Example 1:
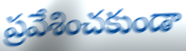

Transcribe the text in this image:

ప్రవేశించకుండా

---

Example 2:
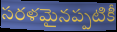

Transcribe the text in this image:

సరళమైనప్పటికీ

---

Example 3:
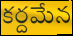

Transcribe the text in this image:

కర్దమేన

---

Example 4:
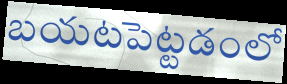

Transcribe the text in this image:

బయటపెట్టడంలో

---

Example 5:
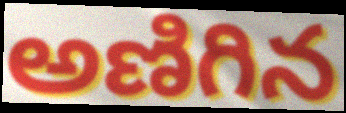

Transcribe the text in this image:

అణిగిన